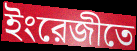
ইংরেজীতে